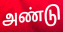
அண்டு